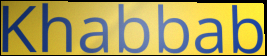
Khabbab